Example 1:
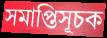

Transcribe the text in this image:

সমাপ্তিসূচক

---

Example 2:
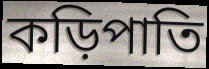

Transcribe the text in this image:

কড়িপাতি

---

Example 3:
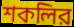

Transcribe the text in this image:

শকলির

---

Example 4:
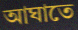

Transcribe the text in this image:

আঘাতে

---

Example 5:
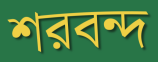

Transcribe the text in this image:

শরবন্দ